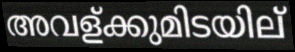
അവള്ക്കുമിടയില്